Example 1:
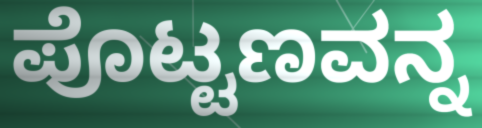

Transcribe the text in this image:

ಪೊಟ್ಟಣವನ್ನ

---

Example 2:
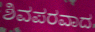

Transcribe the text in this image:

ಶಿವಪರವಾದ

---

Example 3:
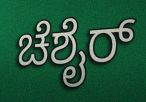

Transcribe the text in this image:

ಚೆಶೈರ್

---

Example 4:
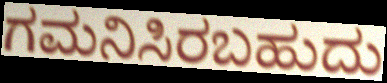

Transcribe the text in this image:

ಗಮನಿಸಿರಬಹುದು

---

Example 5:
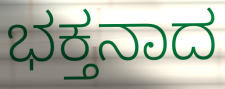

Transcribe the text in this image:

ಭಕ್ತನಾದ